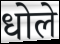
धोले